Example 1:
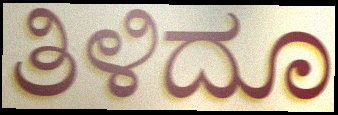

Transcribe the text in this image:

ತಿಳಿದೂ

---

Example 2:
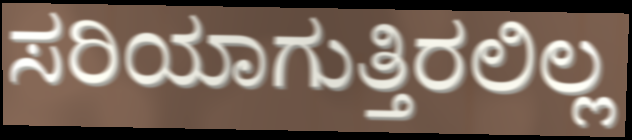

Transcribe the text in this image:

ಸರಿಯಾಗುತ್ತಿರಲಿಲ್ಲ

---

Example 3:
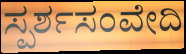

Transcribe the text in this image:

ಸ್ಪರ್ಶಸಂವೇದಿ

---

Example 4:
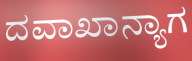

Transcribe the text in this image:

ದವಾಖಾನ್ಯಾಗ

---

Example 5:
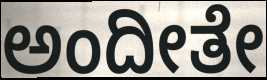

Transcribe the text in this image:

ಅಂದೀತೇ